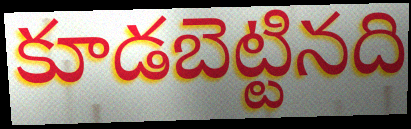
కూడబెట్టినది